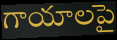
గాయాలపై